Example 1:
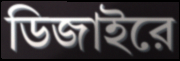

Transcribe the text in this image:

ডিজাইরে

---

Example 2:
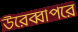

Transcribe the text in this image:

উরেব্বাপরে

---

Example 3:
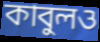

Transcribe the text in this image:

কাবুলও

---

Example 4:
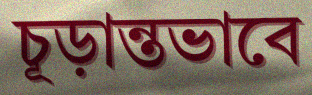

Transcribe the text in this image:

চূড়ান্তভাবে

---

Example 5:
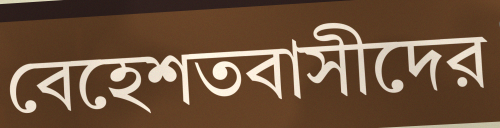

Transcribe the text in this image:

বেহেশতবাসীদের